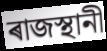
ৰাজস্থানী